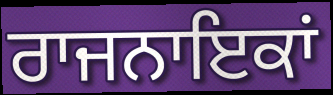
ਰਾਜਨਾਇਕਾਂ